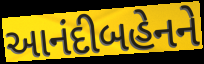
આનંદીબહેનને